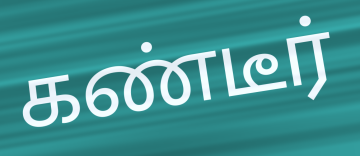
கண்டீர்